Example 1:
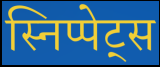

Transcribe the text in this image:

स्निप्पेट्स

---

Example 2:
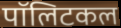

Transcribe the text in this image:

पॉलिटकल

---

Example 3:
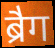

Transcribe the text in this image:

ब्रैग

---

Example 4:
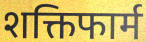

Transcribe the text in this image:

शक्तिफार्म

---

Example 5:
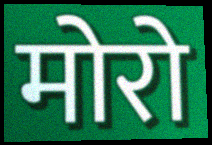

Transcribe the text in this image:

मोरो